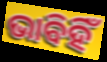
ଭାବିହିଁ